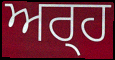
ਅਰ੍‍ਹ